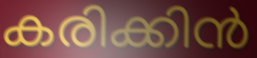
കരിക്കിൻ